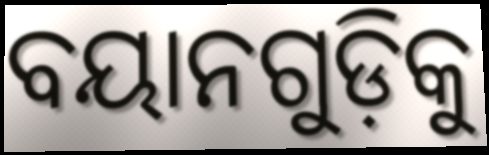
ବୟାନଗୁଡ଼ିକୁ